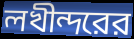
লখীন্দরের